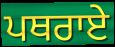
ਪਥਰਾਏ